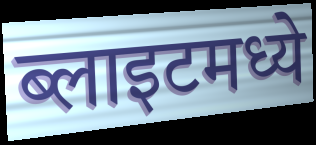
ब्लाइटमध्ये